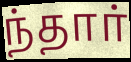
ந்தார்